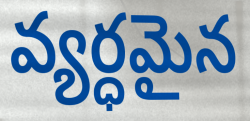
వ్యర్ధమైన